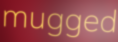
mugged